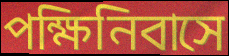
পক্ষিনিবাসে